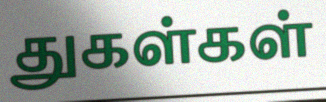
துகள்கள்